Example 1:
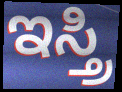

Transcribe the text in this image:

ಇಸ್ತ್ರಿ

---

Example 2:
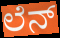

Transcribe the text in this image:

ಲೆನ್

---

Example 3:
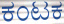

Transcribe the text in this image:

ಕಂಟಕ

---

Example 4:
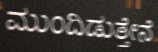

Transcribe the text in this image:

ಮುಂದಿಡುತ್ತೇನೆ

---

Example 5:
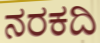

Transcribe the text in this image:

ನರಕದಿ